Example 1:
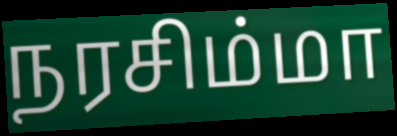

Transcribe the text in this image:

நரசிம்மா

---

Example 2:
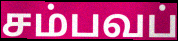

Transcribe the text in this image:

சம்பவப்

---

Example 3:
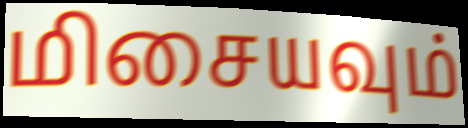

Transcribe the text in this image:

மிசையவும்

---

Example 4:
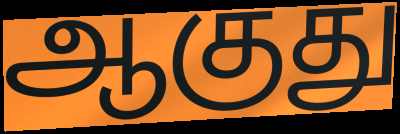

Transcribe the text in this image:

ஆகுது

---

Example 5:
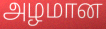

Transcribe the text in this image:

அழமான